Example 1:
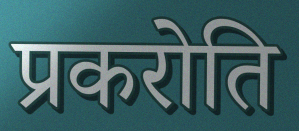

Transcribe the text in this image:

प्रकरोति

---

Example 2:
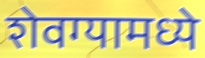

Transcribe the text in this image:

शेवग्यामध्ये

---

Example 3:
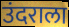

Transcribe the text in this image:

उंदराला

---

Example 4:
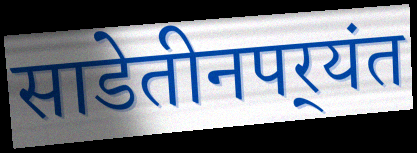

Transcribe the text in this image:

साडेतीनपर्यंत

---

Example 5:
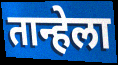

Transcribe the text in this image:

तान्हेला